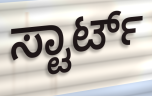
ಸ್ಟಾರ್ಟ್